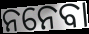
ନନେବା